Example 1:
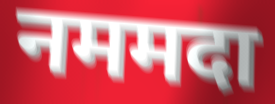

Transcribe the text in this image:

नममदा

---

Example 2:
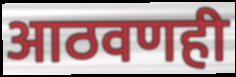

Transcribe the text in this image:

आठवणही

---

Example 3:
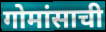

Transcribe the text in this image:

गोमांसाची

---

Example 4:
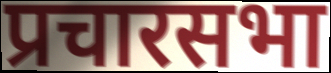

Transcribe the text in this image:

प्रचारसभा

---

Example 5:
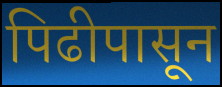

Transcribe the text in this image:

पिढीपासून